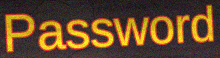
Password